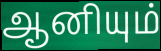
ஆனியும்